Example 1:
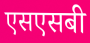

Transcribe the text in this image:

एसएसबी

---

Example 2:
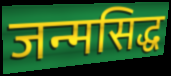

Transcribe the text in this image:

जन्मसिद्ध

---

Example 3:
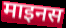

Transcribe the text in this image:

माइनस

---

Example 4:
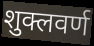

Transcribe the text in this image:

शुक्लवर्ण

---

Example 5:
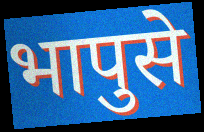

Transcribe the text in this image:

भापुसे